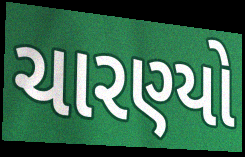
ચારણ્યો